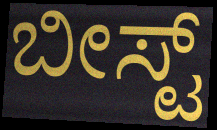
ಬೀಸ್ಟ್